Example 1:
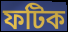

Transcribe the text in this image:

ফটিক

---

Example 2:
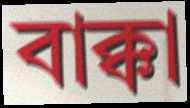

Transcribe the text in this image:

বাক্কা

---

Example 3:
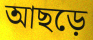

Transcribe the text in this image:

আছড়ে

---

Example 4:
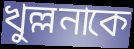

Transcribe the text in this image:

খুল্লনাকে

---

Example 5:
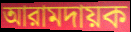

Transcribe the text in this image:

আরামদায়ক